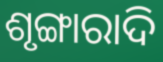
ଶୃଙ୍ଗାରାଦି